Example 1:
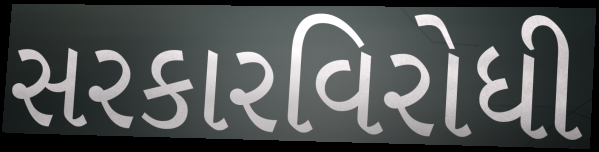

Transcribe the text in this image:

સરકારવિરોધી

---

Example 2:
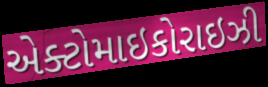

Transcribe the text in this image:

એક્ટોમાઇકોરાઇઝી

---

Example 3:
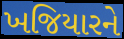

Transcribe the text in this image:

ખજિયારને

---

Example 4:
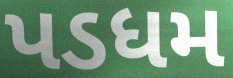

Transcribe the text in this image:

પડધમ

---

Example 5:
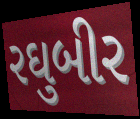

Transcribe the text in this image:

રઘુબીર